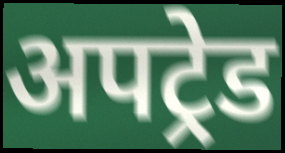
अपट्रेड